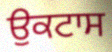
ਉਕਟਾਸ